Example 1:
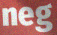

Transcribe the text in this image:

neg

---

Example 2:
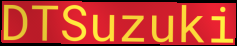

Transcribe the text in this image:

DTSuzuki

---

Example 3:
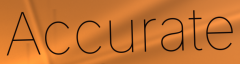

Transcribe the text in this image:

Accurate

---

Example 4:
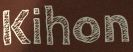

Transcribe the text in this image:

Kihon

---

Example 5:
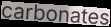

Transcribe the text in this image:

carbonates